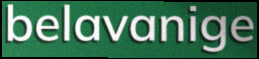
belavanige